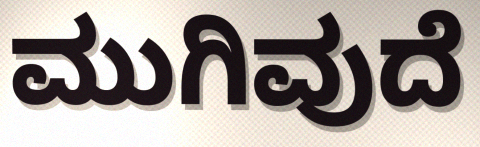
ಮುಗಿವುದೆ